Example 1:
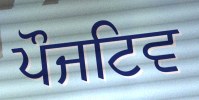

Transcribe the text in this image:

ਪੌਜਟਿਵ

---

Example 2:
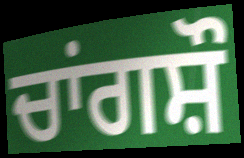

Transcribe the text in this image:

ਚਾਂਗਸ਼ੌ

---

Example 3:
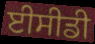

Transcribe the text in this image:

ਈਸੀਡੀ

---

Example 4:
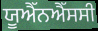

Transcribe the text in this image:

ਯੂਐੱਨਐੱਸਸੀ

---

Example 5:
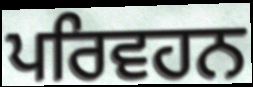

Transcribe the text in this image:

ਪਰਿਵਹਨ